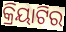
କ୍ରିୟାଟିର